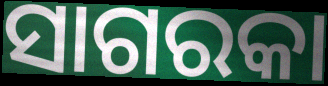
ସାଗରକା